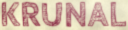
KRUNAL